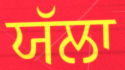
ਯੱਲਾ